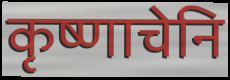
कृष्णाचेनि